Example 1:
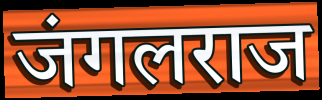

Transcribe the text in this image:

जंगलराज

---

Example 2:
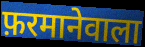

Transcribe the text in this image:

फ़रमानेवाला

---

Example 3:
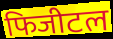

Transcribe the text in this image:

फिजीटल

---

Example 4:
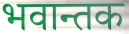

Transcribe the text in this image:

भवान्तक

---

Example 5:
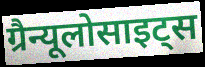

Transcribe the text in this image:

ग्रैन्यूलोसाइट्स